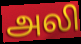
அலி